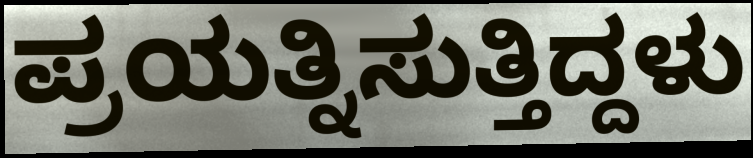
ಪ್ರಯತ್ನಿಸುತ್ತಿದ್ದಳು